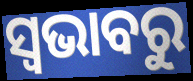
ସ୍ଵଭାବରୁ